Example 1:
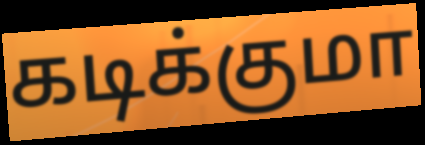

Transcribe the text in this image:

கடிக்குமா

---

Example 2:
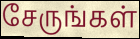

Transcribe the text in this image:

சேருங்கள்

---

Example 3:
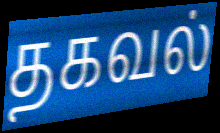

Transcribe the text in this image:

தகவல்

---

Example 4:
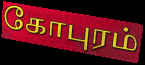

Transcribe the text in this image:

கோபுரம்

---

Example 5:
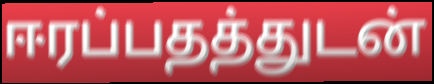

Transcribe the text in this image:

ஈரப்பதத்துடன்